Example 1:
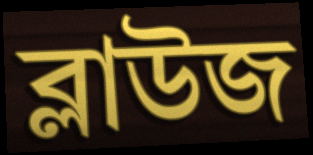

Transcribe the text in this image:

ব্লাউজ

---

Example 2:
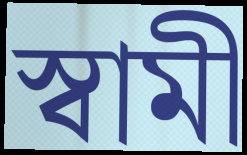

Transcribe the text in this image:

স্বামী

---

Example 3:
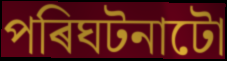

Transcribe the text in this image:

পৰিঘটনাটো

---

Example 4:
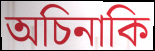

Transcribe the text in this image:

অচিনাকি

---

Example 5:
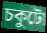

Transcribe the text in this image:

চকুটো